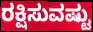
ರಕ್ಷಿಸುವಷ್ಟು